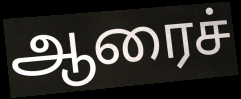
ஆரைச்